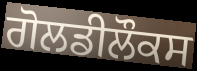
ਗੋਲਡੀਲੌਕਸ